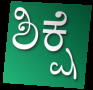
ಶಿಕ್ಷೆ